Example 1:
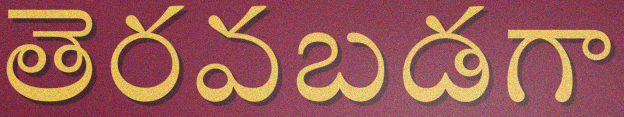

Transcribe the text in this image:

తెరవబడగా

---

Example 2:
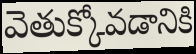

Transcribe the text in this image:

వెతుక్కోవడానికి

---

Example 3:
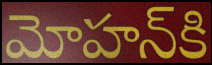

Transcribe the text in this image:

మోహన్‌కి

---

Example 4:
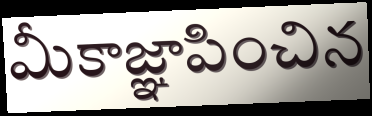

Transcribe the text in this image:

మీకాజ్ఞాపించిన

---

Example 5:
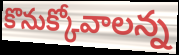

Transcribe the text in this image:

కొనుక్కోవాలన్న